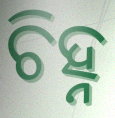
ଚିହ୍ନ